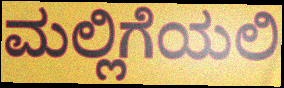
ಮಲ್ಲಿಗೆಯಲಿ